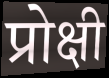
प्रोक्षी